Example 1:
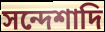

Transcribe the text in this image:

সন্দেশাদি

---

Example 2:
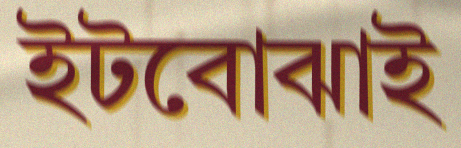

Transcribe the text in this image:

ইটবোঝাই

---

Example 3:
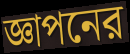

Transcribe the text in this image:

জ্ঞাপনের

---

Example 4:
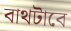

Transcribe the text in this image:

বাথটাবে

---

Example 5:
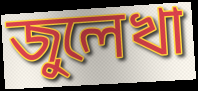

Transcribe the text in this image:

জুলেখা